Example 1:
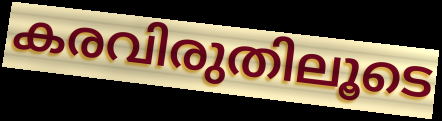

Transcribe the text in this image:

കരവിരുതിലൂടെ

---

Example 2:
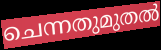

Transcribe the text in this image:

ചെന്നതുമുതൽ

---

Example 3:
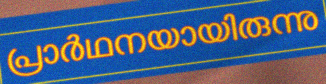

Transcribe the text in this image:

പ്രാർഥനയായിരുന്നു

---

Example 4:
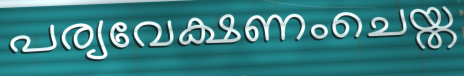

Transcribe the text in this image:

പര്യവേക്ഷണംചെയ്ത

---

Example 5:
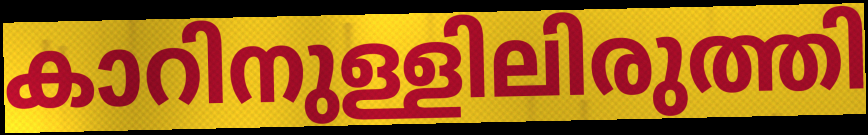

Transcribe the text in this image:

കാറിനുള്ളിലിരുത്തി